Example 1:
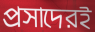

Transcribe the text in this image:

প্রসাদেরই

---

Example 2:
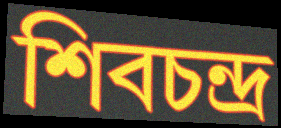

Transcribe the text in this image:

শিবচন্দ্র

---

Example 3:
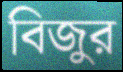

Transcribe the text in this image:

বিজুর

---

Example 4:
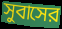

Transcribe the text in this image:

সুবাসের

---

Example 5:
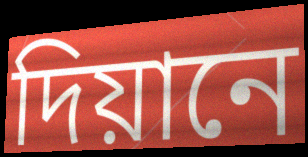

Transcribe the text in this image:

দিয়ানে